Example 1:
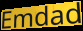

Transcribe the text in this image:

Emdad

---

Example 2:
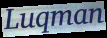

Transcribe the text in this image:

Luqman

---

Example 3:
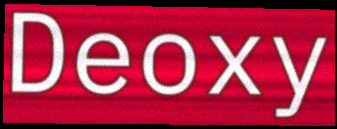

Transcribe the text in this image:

Deoxy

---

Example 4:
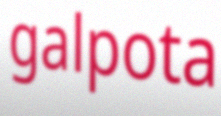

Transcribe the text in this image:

galpota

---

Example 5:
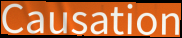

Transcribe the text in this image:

Causation